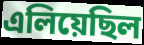
এলিয়েছিল